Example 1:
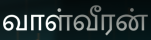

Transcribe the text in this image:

வாள்வீரன்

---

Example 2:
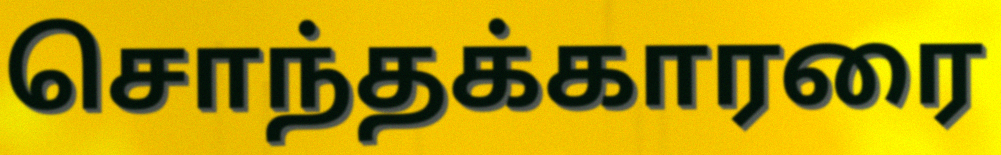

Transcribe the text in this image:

சொந்தக்காரரை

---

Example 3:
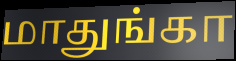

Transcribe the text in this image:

மாதுங்கா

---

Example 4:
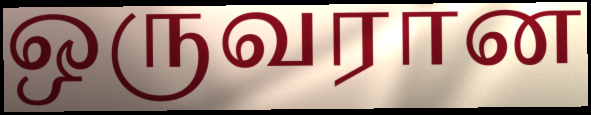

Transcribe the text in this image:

ஒருவரான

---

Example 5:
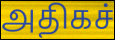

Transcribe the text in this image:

அதிகச்